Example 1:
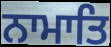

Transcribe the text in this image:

ਨਾਮਾਤਿ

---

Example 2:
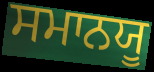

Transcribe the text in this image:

ਸਮਾਨਯੂ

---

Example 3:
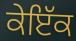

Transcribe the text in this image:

ਕੇਇੱਕ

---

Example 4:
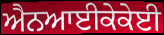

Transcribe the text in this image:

ਐਨਆਈਕੇਕੇਈ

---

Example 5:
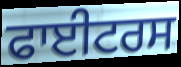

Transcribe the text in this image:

ਫਾਈਟਰਸ